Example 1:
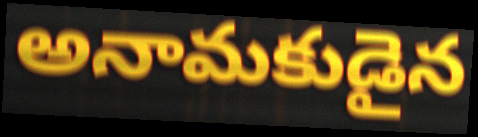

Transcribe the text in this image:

అనామకుడైన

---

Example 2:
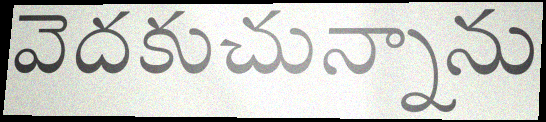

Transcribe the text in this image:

వెదకుచున్నాను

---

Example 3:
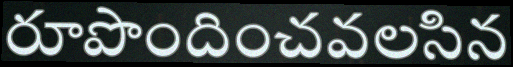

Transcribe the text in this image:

రూపొందించవలసిన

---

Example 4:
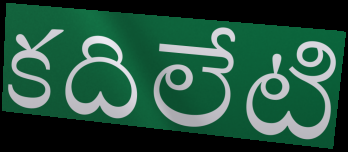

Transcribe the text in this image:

కదిలేటి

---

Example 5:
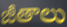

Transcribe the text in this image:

జీతాలు